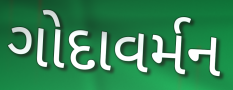
ગોદાવર્મન